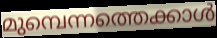
മുമ്പെന്നത്തെക്കാൾ